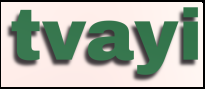
tvayi